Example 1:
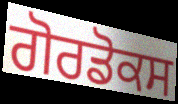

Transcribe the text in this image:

ਗੋਰਡੋਕਸ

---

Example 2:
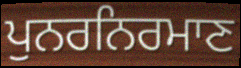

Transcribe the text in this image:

ਪੁਨਰਨਿਰਮਾਣ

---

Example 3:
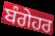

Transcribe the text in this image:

ਬੰਗੇਹਰ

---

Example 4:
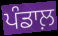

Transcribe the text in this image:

ਪੰਡਾਲ਼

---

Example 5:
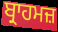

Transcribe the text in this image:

ਬ੍ਰਾਹਮਜ਼